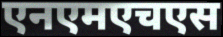
एनएमएचएस